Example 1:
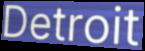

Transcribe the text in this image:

Detroit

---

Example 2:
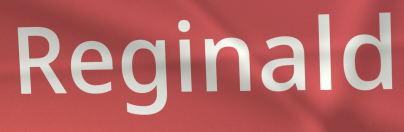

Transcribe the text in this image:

Reginald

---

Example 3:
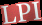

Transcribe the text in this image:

LPI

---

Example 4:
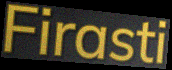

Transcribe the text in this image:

Firasti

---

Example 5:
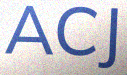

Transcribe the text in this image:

ACJ